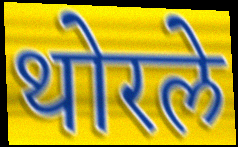
थोरले